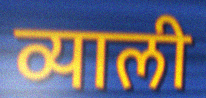
व्याली